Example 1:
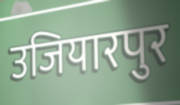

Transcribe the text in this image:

उजियारपुर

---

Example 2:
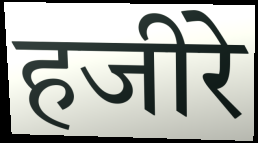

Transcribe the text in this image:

हजीरे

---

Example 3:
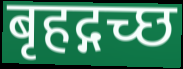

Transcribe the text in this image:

बृहद्गच्छ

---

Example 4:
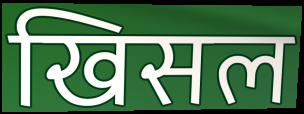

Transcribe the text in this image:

खिसल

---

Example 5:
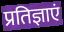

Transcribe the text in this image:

प्रतिज्ञाएं